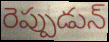
రెప్పుడున్